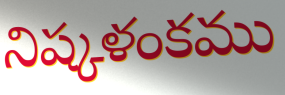
నిష్కళంకము